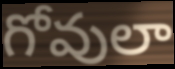
గోవులా